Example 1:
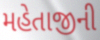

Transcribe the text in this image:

મહેતાજીની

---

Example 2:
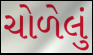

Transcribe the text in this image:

ચોળેલું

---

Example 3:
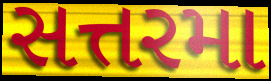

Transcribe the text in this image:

સત્તરમા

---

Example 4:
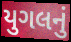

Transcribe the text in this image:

યુગલનું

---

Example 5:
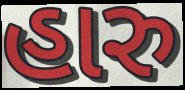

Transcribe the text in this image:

હારુ